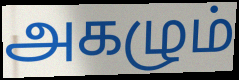
அகழும்